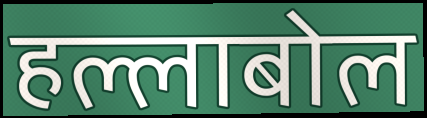
हल्लाबोल